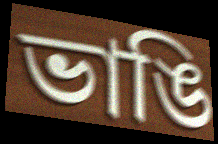
ভাঙি